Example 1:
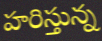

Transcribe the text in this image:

హరిస్తున్న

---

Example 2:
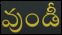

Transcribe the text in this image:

వుండీ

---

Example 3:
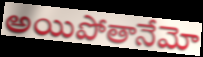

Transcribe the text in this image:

అయిపోతానేమో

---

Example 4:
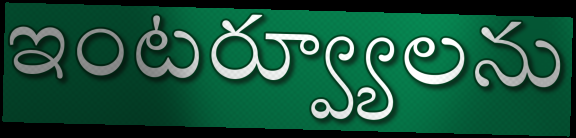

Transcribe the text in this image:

ఇంటర్వ్యూలను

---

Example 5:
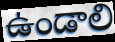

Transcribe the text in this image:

ఉండాలి